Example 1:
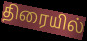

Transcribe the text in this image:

திரையில்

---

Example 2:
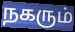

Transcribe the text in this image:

நகரும்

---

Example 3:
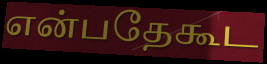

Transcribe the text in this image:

என்பதேகூட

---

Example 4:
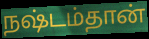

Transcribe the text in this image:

நஷ்டம்தான்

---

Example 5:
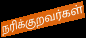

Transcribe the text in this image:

நரிக்குறவர்கள்